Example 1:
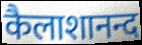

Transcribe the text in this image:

कैलाशानन्द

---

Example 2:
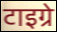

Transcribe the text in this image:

टाइग्रे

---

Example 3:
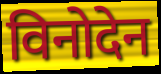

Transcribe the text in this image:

विनोदेन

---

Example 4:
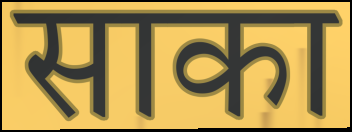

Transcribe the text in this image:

साका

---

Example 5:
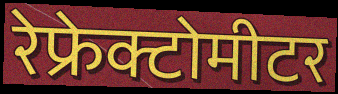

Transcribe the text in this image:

रेफ्रेक्टोमीटर